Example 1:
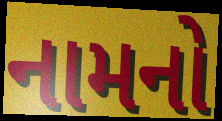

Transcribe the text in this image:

નામનો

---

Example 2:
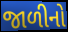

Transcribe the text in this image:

જાળીનો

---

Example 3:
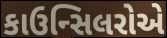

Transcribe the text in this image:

કાઉન્સિલરોએ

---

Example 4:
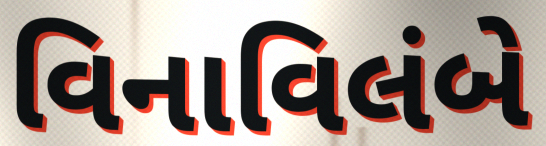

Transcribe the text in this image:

વિનાવિલંબે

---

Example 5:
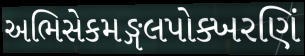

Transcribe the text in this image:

અભિસેકમઙ્ગલપોક્ખરણિં